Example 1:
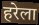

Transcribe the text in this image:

हरेला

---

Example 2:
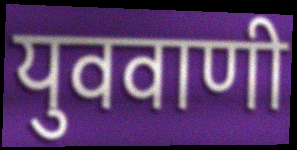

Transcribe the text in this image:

युववाणी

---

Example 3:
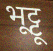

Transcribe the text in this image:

भूट्टू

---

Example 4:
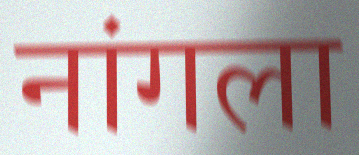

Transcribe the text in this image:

नांगला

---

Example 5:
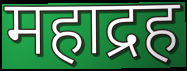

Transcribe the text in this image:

महाद्रह